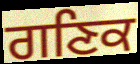
ਗਣਿਕ